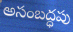
అసంబద్ధపు